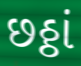
છઠ્ઠાં